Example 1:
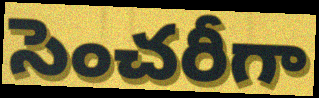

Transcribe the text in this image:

సెంచరీగా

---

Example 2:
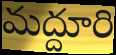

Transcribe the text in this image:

మద్దూరి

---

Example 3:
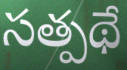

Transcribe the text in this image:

సత్పథే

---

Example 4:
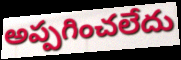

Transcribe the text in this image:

అప్పగించలేదు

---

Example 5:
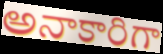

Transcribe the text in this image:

అనాకారిగా